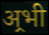
अ्रभी